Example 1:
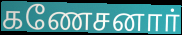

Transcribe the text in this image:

கணேசனார்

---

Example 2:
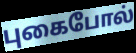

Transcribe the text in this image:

புகைபோல்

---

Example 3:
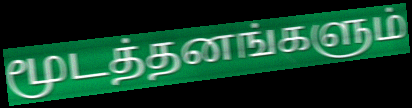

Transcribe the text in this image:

மூடத்தனங்களும்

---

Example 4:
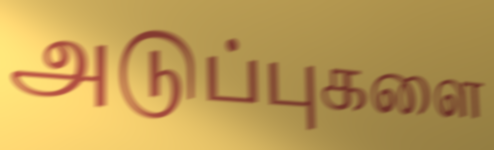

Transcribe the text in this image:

அடுப்புகளை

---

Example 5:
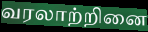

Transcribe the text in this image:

வரலாற்றினை